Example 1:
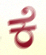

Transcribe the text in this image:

ಕೆ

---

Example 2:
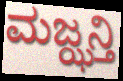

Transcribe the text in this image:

ಮಜ್ಝನ್ತಿ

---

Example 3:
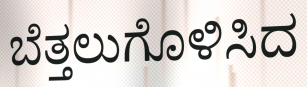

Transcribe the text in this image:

ಬೆತ್ತಲುಗೊಳಿಸಿದ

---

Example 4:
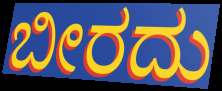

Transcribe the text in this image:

ಬೀರದು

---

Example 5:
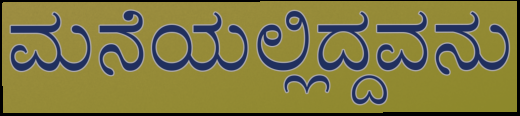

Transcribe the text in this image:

ಮನೆಯಲ್ಲಿದ್ದವನು